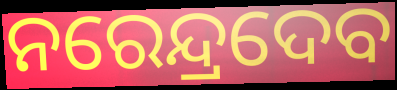
ନରେନ୍ଦ୍ରଦେବ